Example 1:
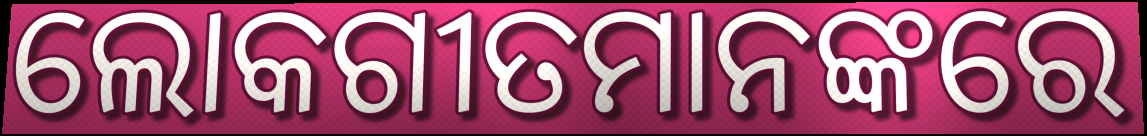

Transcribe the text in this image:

ଲୋକଗୀତମାନଙ୍କରେ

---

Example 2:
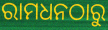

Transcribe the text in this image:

ରାମଧନଠାରୁ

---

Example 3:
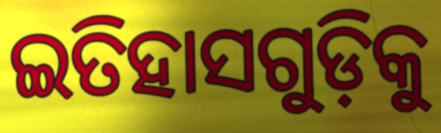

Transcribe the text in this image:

ଇତିହାସଗୁଡ଼ିକୁ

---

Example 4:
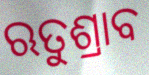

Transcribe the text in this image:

ଋତୁଶ୍ରାବ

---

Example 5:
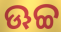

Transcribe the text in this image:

ଊଚ୍ଚ